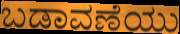
ಬಡಾವಣೆಯು